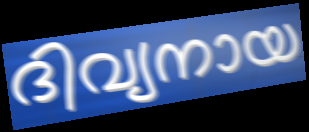
ദിവ്യനായ